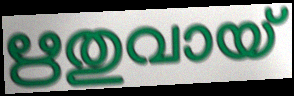
ഋതുവായ്